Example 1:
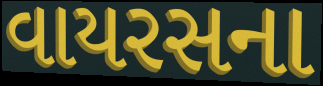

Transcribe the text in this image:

વાયરસના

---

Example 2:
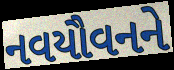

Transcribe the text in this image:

નવયૌવનને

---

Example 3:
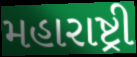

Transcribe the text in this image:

મહારાષ્ટ્રી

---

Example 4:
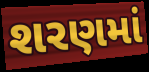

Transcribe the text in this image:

શરણમાં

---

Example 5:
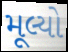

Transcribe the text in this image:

મૂલ્યો